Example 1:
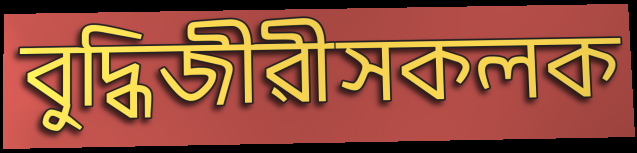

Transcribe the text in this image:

বুদ্ধিজীৱীসকলক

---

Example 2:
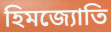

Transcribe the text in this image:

হিমজ্যোতি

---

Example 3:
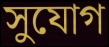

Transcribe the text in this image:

সুযোগ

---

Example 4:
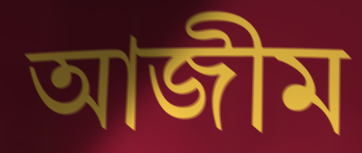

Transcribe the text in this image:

আজীম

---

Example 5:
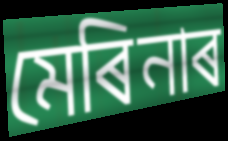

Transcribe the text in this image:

মেৰিনাৰ